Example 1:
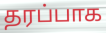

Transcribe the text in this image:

தரப்பாக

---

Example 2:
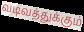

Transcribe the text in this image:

வடிவத்துக்கும்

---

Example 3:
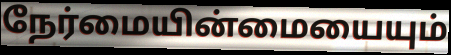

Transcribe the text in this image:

நேர்மையின்மையையும்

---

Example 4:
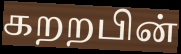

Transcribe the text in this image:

கறறபின்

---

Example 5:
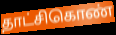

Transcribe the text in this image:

தாட்சிகொண்